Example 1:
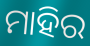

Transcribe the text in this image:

ମାହିର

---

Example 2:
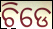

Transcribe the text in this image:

ଚିଡେ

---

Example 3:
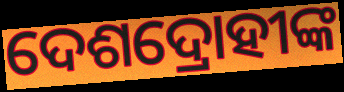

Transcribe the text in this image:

ଦେଶଦ୍ରୋହୀଙ୍କ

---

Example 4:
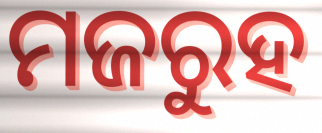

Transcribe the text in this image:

ମଜରୁହ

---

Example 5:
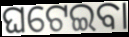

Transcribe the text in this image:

ଘଟେଇବା